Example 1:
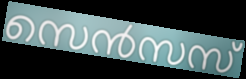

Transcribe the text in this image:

സെൻസസ്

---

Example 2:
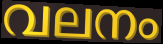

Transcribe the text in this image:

വലനം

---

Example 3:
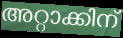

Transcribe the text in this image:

അറ്റാക്കിന്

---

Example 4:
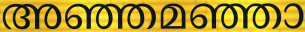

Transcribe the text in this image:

അഞ്ഞമഞ്ഞാ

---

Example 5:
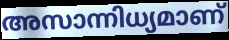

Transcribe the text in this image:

അസാന്നിധ്യമാണ്